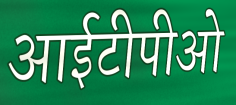
आईटीपीओ